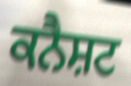
ਕਨੈਸ਼ਟ